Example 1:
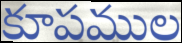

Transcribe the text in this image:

కూపముల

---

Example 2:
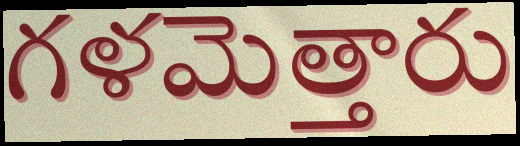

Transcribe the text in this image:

గళమెత్తారు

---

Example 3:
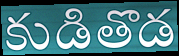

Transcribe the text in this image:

కుడితొడ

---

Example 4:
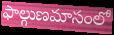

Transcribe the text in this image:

ఫాల్గుణమాసంలో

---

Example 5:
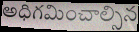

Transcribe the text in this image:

అధిగమించాల్సిన